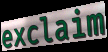
exclaim